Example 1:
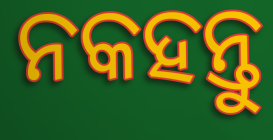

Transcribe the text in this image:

ନକହନ୍ତୁ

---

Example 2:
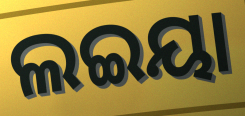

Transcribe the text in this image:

ଲଇୟା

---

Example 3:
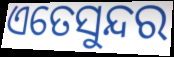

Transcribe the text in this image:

ଏତେସୁନ୍ଦର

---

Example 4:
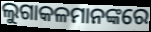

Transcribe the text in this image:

ଲୁଗାକଳମାନଙ୍କରେ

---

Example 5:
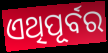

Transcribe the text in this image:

ଏଥିପୂର୍ବର